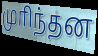
முரிந்தன